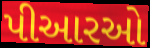
પીઆરઓ